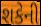
શકેની